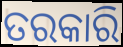
ତରକାରି